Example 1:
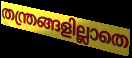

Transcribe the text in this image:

തന്ത്രങ്ങളില്ലാതെ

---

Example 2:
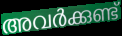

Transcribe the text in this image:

അവർക്കുണ്ട്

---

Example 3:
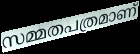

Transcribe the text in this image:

സമ്മതപത്രമാണ്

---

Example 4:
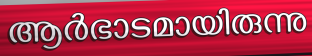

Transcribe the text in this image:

ആർഭാടമായിരുന്നു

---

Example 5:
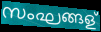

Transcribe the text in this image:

സംഘങ്ങള്